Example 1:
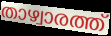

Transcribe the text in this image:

താഴ്വാരത്ത്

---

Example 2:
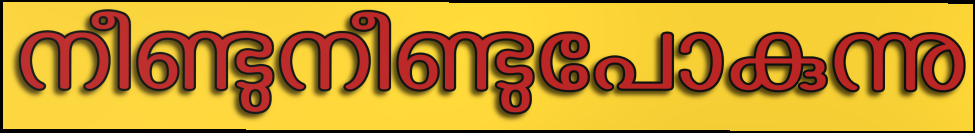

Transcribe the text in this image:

നീണ്ടുനീണ്ടുപോകുന്നു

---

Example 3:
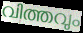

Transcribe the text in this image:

വിത്തവും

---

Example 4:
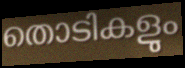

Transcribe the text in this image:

തൊടികളും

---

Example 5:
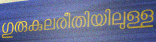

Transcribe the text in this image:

ഗുരുകുലരീതിയിലുള്ള